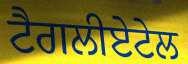
ਟੈਗਲੀਏਟੇਲ